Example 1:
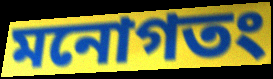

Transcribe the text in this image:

মনোগতং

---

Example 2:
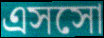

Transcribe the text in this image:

এসসো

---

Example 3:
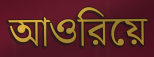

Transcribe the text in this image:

আওরিয়ে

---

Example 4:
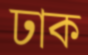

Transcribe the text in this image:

ঢাক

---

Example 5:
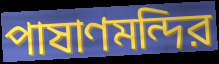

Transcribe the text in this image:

পাষাণমন্দির